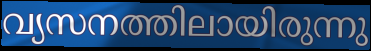
വ്യസനത്തിലായിരുന്നു